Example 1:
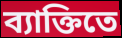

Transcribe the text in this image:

ব্যাক্তিতে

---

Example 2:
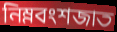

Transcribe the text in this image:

নিম্নবংশজাত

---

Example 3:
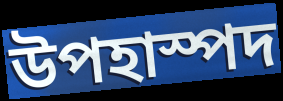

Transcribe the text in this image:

উপহাস্পদ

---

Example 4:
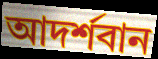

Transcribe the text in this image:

আদর্শবান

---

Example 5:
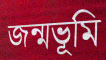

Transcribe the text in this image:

জন্মভূমি